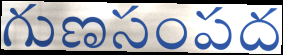
గుణసంపద